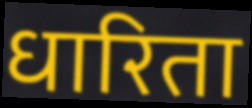
धारिता